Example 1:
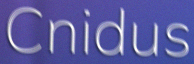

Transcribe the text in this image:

Cnidus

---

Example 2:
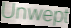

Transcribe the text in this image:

Unwept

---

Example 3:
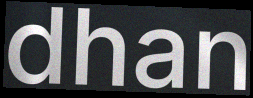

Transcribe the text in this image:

dhan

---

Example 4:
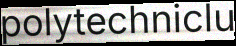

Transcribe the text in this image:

polytechniclu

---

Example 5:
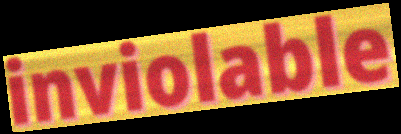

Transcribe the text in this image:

inviolable